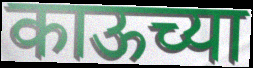
काऊच्या